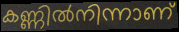
കണ്ണിൽനിന്നാണ്